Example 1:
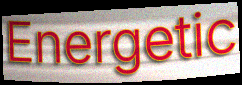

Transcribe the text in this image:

Energetic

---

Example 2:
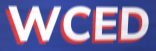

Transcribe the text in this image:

WCED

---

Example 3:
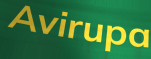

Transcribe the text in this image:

Avirupa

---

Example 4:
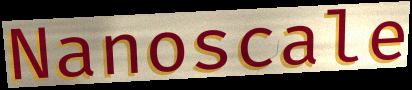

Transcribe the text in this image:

Nanoscale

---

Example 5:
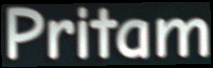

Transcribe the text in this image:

Pritam